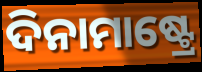
ଦିନାମାଷ୍ଟ୍ରେ